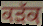
ਕੜੱਕ